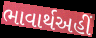
ભાવાર્થઅહીં